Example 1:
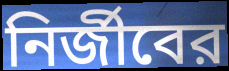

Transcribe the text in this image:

নির্জীবের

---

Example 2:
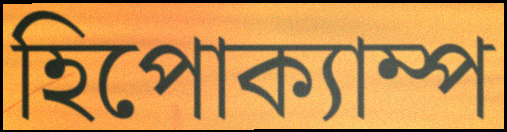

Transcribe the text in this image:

হিপোক্যাম্প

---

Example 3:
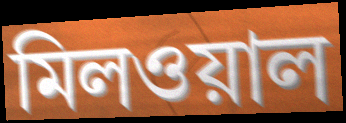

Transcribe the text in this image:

মিলওয়াল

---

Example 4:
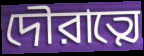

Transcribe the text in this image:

দৌরাত্মে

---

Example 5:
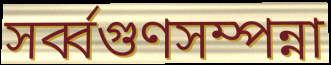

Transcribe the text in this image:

সর্ব্বগুণসম্পন্না